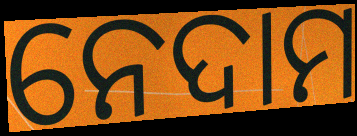
ନେଦାମ